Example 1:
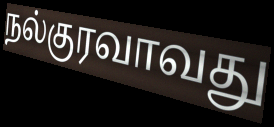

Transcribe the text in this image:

நல்குரவாவது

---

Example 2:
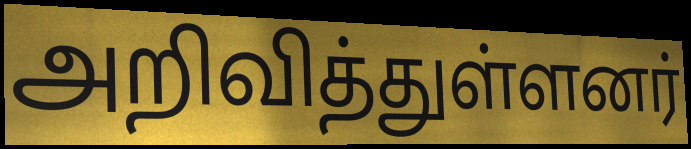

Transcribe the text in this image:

அறிவித்துள்ளனர்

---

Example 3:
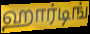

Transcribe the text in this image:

ஹார்டிங்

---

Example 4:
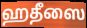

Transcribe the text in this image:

ஹதீஸை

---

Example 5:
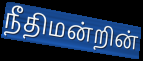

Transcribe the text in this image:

நீதிமன்றின்